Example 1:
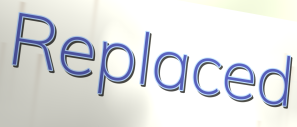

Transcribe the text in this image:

Replaced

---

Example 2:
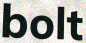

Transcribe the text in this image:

bolt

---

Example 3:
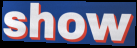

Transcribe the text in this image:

show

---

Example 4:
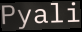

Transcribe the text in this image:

Pyali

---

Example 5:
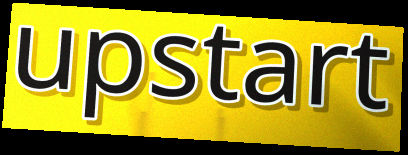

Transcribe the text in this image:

upstart